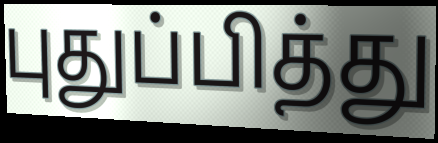
புதுப்பித்து